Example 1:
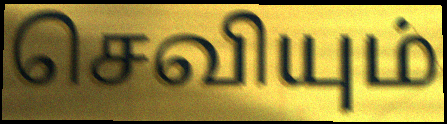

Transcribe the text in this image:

செவியும்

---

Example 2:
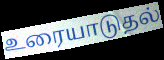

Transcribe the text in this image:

உரையாடுதல்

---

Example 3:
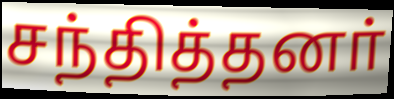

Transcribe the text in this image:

சந்தித்தனர்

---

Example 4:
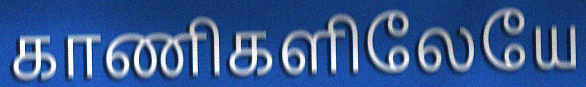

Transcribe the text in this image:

காணிகளிலேயே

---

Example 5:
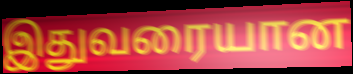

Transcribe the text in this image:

இதுவரையான